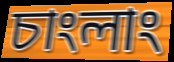
চাংলাং